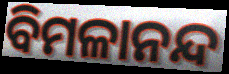
ବିମଳାନନ୍ଦ